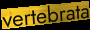
vertebrata